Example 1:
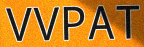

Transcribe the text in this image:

VVPAT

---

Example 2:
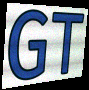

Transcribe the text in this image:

GT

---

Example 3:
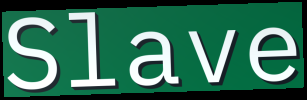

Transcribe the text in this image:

Slave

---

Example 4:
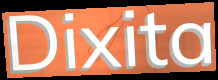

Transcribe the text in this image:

Dixita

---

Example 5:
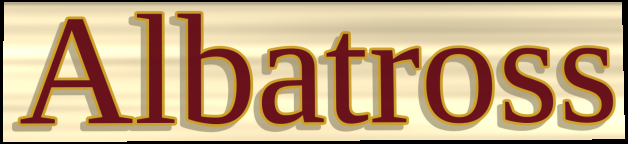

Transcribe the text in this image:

Albatross